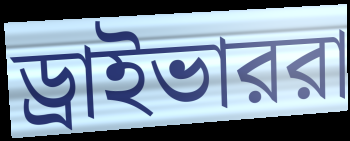
ড্রাইভাররা